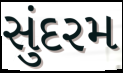
સુંદરમ